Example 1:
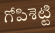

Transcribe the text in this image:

గోపిశెట్టి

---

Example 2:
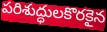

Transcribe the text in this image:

పరిశుద్ధులకొరకైన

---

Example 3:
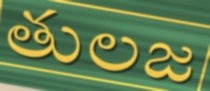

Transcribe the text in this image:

తులజ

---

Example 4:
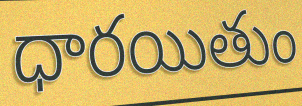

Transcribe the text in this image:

ధారయితుం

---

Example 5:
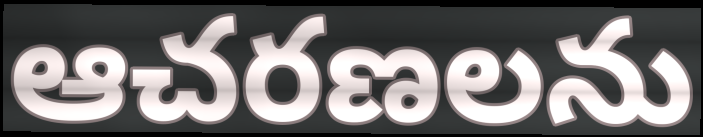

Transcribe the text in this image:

ఆచరణలను